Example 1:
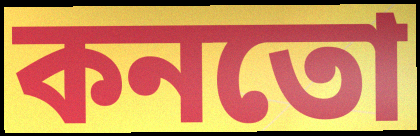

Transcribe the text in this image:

কনতো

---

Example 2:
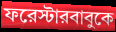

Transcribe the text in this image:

ফরেস্টারবাবুকে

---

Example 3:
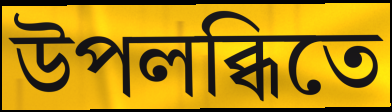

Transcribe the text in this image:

উপলব্ধিতে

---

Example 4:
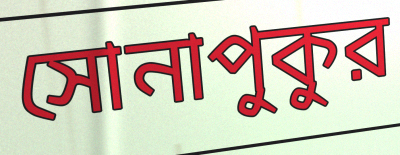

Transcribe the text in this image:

সোনাপুকুর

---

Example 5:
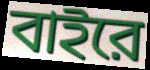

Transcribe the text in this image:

বাইরে